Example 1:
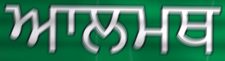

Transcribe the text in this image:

ਆਲਮਥ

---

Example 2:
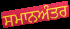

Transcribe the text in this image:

ਸਮਾਨਅੰਤਰ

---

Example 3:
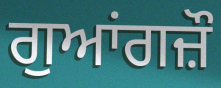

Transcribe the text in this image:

ਗੁਆਂਗਜ਼ੌ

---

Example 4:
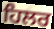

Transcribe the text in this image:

ਹਿਲਰ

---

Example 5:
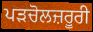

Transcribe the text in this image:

ਪੜਚੋਲਜ਼ਰੂਰੀ